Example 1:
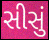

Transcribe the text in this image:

સીસું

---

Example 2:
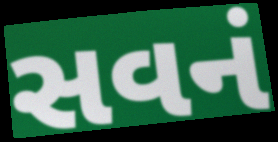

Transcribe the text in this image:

સવનં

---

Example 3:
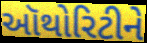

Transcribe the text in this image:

ઑથોરિટીને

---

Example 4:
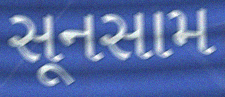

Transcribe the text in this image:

સૂનસામ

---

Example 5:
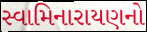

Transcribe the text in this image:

સ્વામિનારાયણનો